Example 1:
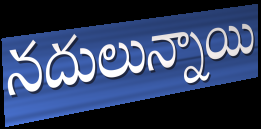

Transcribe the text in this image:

నదులున్నాయి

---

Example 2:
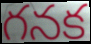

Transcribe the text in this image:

గనక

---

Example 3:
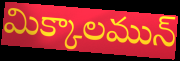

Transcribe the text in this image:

మిక్కాలమున్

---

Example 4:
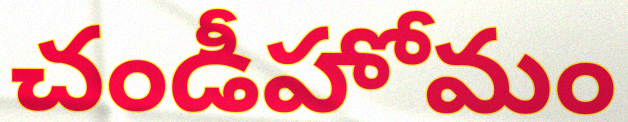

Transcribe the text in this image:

చండీహోమం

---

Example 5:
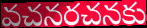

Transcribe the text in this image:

వచనరచనకు